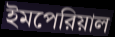
ইমপেরিয়াল